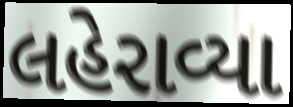
લહેરાવ્યા